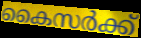
കൈസർക്ക്